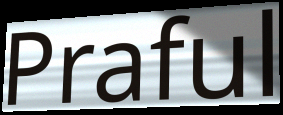
Praful